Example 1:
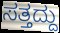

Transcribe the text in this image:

ಸತ್ತದ್ದು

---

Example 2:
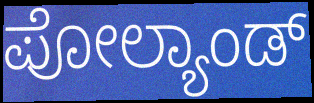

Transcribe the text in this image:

ಪೋಲ್ಯಾಂಡ್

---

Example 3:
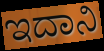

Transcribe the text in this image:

ಇದಾನಿ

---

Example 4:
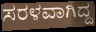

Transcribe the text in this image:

ಸರಳವಾಗಿದ್ದ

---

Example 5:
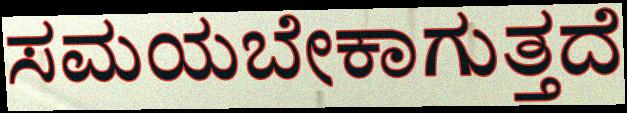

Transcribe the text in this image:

ಸಮಯಬೇಕಾಗುತ್ತದೆ